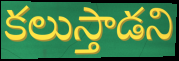
కలుస్తాడని